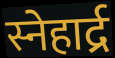
स्नेहार्द्र